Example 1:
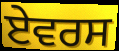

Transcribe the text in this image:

ਏਵਰਸ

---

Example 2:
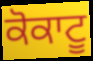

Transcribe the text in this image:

ਕੋਕਾਟੂ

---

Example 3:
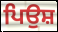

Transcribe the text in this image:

ਪਿਉਸ਼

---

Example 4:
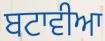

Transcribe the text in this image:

ਬਟਾਵੀਆ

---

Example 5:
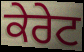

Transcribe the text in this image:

ਕੇਰੇਟ